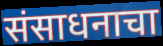
संसाधनाचा